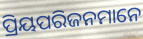
ପ୍ରିୟପରିଜନମାନେ